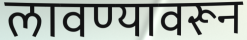
लावण्यावरून